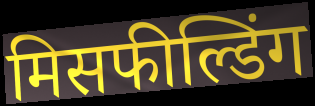
मिसफील्डिंग